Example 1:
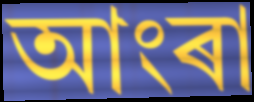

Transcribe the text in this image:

আংৰা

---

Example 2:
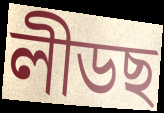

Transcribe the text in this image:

লীডছ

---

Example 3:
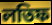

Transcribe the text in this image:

লতিফ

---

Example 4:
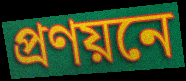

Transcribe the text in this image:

প্ৰণয়নে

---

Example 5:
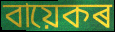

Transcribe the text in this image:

বায়েকৰ